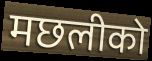
मछलीको